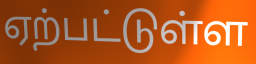
ஏற்பட்டுள்ள